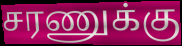
சரணுக்கு